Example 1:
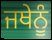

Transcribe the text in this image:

ਜਥੇਨੂੰ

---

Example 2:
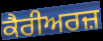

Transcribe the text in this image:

ਕੈਰੀਅਰਜ਼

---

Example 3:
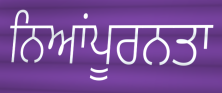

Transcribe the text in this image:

ਨਿਆਂਪੂਰਨਤਾ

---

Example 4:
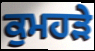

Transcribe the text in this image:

ਕੁਮਹੜੇ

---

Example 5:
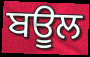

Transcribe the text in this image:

ਬਊਲ